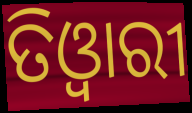
ତିଓ୍ଵାରୀ